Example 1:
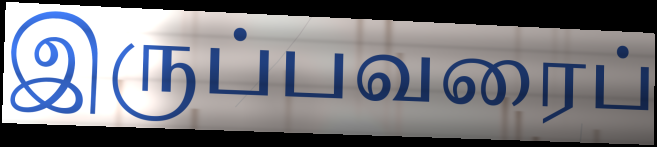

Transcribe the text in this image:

இருப்பவரைப்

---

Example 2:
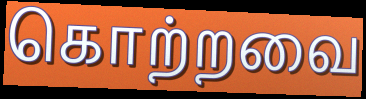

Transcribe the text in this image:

கொற்றவை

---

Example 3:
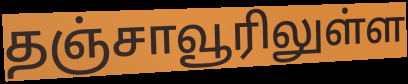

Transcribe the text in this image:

தஞ்சாவூரிலுள்ள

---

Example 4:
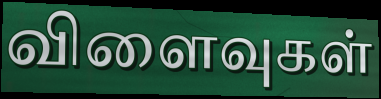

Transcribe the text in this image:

விளைவுகள்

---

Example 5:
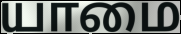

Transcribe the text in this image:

யாமை